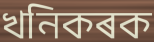
খনিকৰক